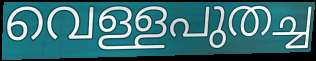
വെള്ളപുതച്ച